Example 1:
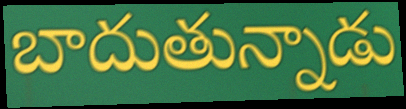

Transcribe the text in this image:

బాదుతున్నాడు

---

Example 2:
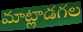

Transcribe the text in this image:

మాట్లాడగల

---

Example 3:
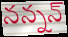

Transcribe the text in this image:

నన్నన్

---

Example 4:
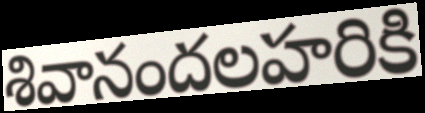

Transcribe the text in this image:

శివానందలహరికి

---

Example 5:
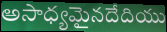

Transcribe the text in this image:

అసాధ్యమైనదేదియు